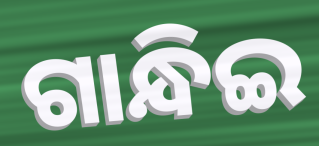
ଗାନ୍ଧିଇ